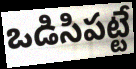
ఒడిసిపట్టే